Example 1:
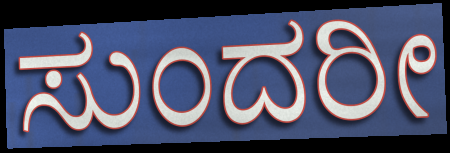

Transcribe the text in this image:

ಸುಂದರೀ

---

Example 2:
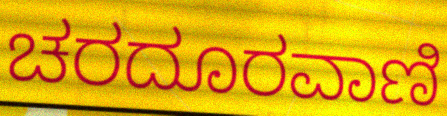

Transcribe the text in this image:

ಚರದೂರವಾಣಿ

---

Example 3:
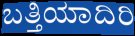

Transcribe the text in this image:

ಬತ್ತಿಯಾದಿರಿ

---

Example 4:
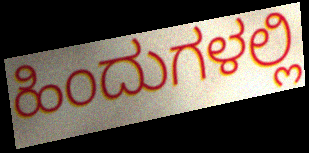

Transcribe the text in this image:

ಹಿಂದುಗಳಲ್ಲಿ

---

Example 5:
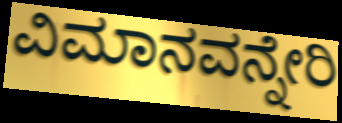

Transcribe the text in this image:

ವಿಮಾನವನ್ನೇರಿ